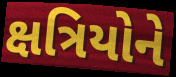
ક્ષત્રિયોને